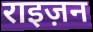
राइज़न